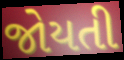
જોયતી